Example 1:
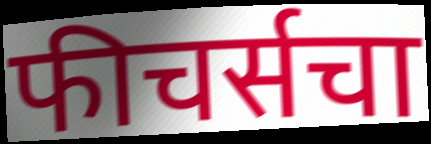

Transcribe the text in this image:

फीचर्सचा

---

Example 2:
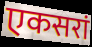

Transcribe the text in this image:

एकसरां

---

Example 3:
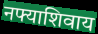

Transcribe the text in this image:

नफ्याशिवाय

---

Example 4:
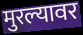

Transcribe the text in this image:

मुरल्यावर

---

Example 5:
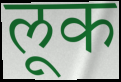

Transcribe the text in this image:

लूक